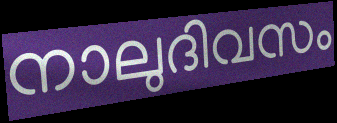
നാലുദിവസം